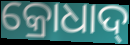
କ୍ରୋଧାଦ୍